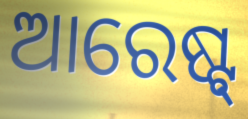
ଆରେଷ୍ଟ୍